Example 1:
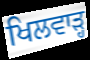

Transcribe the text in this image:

ਖਿਲਵਾੜ੍ਹ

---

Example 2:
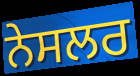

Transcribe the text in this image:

ਨੇਸਲਰ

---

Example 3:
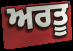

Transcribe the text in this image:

ਅਰਤੂ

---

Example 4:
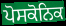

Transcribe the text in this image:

ਪੋਸਕੋਨਿਕ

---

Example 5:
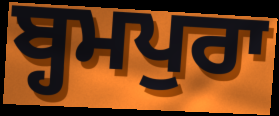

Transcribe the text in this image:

ਬ੍ਹਮਪੁਰਾ